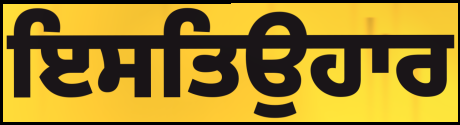
ਇਸਤਿਉਹਾਰ